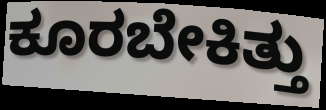
ಕೂರಬೇಕಿತ್ತು